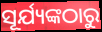
ସୂର୍ଯ୍ୟଙ୍କଠାରୁ